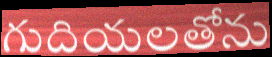
గుదియలతోను